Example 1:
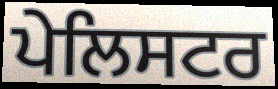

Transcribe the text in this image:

ਪੇਲਿਸਟਰ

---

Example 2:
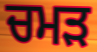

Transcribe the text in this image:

ਚਮੜ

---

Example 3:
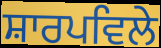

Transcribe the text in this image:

ਸ਼ਾਰਪਵਿਲੇ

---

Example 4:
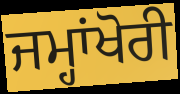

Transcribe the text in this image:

ਜਮ੍ਹਾਂਖੋਰੀ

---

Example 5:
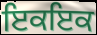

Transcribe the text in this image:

ਇਕਇਕ